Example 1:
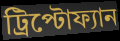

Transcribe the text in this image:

ট্রিপ্টোফ্যান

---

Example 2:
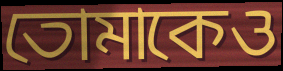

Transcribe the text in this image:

তোমাকেও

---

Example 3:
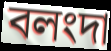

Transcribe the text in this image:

বলংদা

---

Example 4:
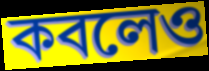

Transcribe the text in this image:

কবলেও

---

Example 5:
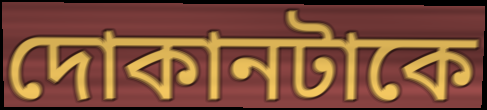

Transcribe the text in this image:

দোকানটাকে